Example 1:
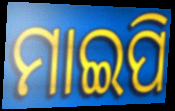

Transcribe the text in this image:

ମାଇପି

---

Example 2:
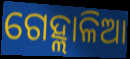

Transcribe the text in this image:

ଗେହ୍ଲାଳିଆ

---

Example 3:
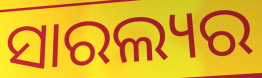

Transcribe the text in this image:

ସାରଲ୍ୟର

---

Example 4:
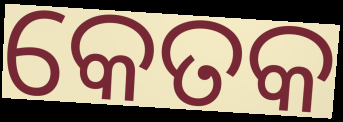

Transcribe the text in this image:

କେତକ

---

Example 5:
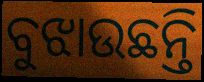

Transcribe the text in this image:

ବୁଝାଉଛନ୍ତି